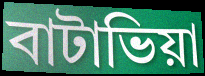
বাটাভিয়া